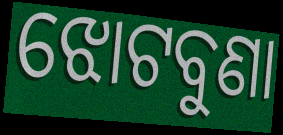
ଝୋଟବୁଣା